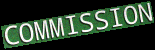
COMMISSION